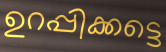
ഉറപ്പിക്കട്ടെ